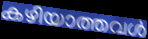
കഴിയാത്തവൾ